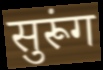
सुरूंग